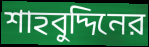
শাহবুদ্দিনের